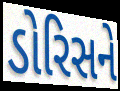
ડોરિસને